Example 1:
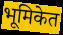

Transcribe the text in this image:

भूमिकेत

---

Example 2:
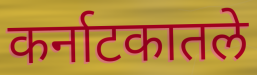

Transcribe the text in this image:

कर्नाटकातले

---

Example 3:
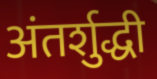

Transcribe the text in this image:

अंतर्शुद्धी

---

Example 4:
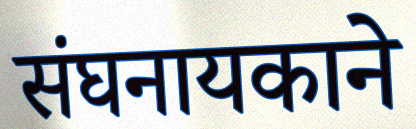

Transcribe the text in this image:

संघनायकाने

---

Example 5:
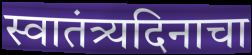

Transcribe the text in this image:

स्वातंत्र्यदिनाचा